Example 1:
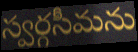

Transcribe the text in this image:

స్వర్గసీమను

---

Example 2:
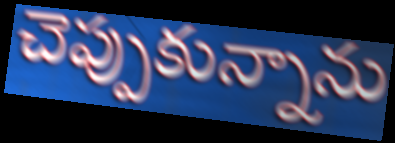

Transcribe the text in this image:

చెప్పుకున్నాను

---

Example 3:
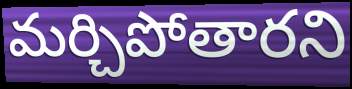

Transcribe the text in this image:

మర్చిపోతారని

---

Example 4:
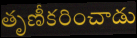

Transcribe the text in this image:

తృణీకరించాడు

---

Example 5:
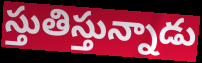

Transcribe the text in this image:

స్తుతిస్తున్నాడు